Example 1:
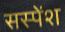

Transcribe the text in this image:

सस्पेंश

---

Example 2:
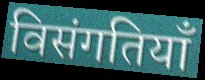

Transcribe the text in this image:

विसंगतियाँ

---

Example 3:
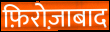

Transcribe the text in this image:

फ़िरोज़ाबाद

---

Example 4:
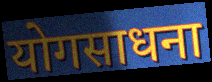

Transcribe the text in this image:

योगसाधना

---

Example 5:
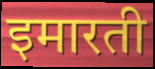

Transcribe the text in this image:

इमारती